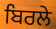
ਬਿਰਲੇ